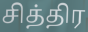
சித்திர